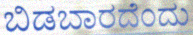
ಬಿಡಬಾರದೆಂದು